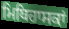
ਮਿਥਿਹਾਸਕਾਂ